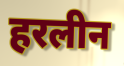
हरलीन